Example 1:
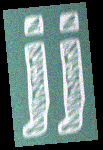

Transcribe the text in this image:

jj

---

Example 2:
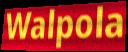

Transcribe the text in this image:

Walpola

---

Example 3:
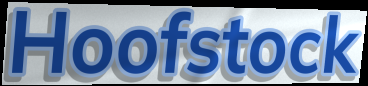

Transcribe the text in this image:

Hoofstock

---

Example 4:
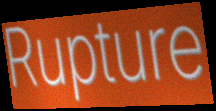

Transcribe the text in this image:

Rupture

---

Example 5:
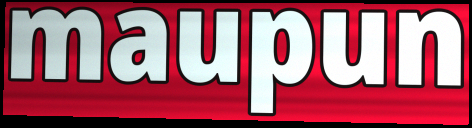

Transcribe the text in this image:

maupun